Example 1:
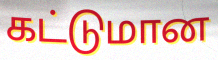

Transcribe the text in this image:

கட்டுமான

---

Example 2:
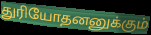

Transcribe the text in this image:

துரியோதனனுக்கும்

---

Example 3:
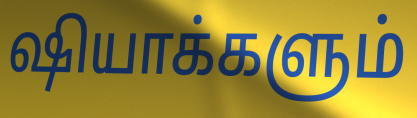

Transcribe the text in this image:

ஷியாக்களும்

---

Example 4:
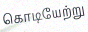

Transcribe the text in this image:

கொடியேற்று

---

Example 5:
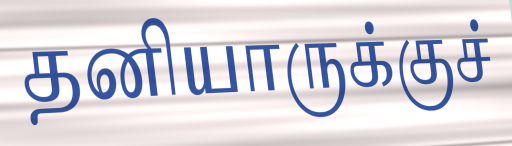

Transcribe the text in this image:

தனியாருக்குச்